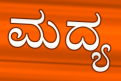
ಮದ್ಯ